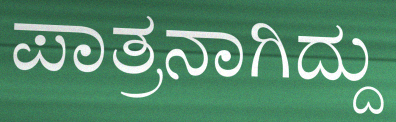
ಪಾತ್ರನಾಗಿದ್ದು